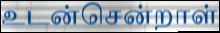
உடன்சென்றாள்